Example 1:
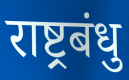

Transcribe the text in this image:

राष्ट्रबंधु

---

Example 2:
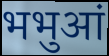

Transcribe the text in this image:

भभुआं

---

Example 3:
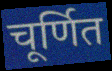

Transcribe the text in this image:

चूर्णित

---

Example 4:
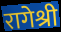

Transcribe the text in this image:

रागेश्री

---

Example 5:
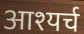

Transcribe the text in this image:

आश्यर्च